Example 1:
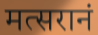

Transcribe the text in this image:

मत्सरानं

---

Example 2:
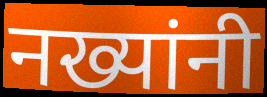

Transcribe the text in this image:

नख्यांनी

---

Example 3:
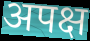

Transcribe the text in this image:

अपक्ष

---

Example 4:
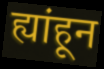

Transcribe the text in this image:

ह्यांहून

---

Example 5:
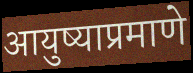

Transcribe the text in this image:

आयुष्याप्रमाणे